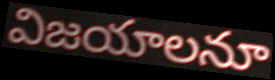
విజయాలనూ